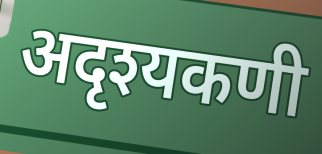
अदृश्यकणी